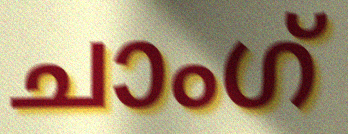
ചാംഗ്